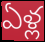
ఏళ్ల